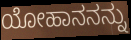
ಯೋಹಾನನನ್ನು